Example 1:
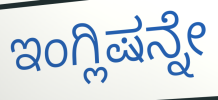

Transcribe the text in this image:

ಇಂಗ್ಲಿಷನ್ನೇ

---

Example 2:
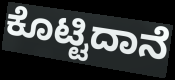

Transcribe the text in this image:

ಕೊಟ್ಟಿದಾನೆ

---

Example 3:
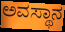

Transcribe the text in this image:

ಅವಸ್ಥಾನ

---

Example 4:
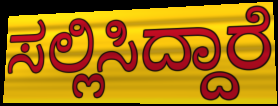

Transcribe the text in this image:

ಸಲ್ಲಿಸಿದ್ದಾರೆ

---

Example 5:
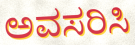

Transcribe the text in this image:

ಅವಸರಿಸಿ